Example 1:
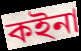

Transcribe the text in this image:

কইনা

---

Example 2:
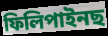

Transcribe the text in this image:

ফিলিপাইনছ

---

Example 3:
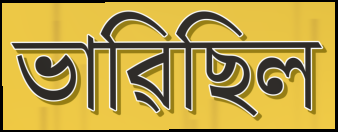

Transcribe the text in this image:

ভাৱিছিল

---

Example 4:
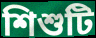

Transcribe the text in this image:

শিশুটি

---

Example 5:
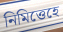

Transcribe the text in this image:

নিমিত্তেহে